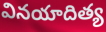
వినయాదిత్య